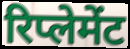
रिप्लेमेंट